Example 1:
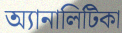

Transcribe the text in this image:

অ্যানালিটিকা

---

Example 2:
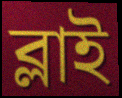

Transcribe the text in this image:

ব্লাই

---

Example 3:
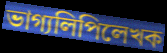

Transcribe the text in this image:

ভাগ্যলিপিলেখক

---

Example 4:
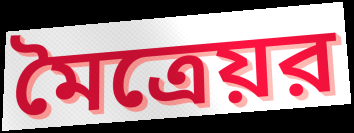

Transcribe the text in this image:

মৈত্রেয়র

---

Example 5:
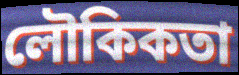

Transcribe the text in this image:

লৌকিকতা